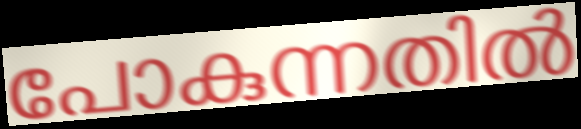
പോകുന്നതിൽ